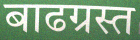
बाढग्रस्त